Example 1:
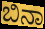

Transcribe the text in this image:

ಬಿನಾ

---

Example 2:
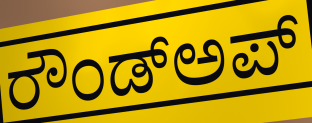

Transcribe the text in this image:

ರೌಂಡ್ಅಪ್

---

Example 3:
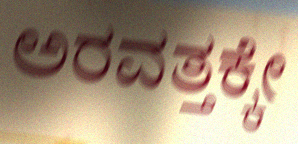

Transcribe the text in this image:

ಅರವತ್ತಕ್ಕೇ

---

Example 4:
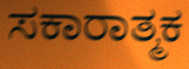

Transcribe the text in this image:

ಸಕಾರಾತ್ಮಕ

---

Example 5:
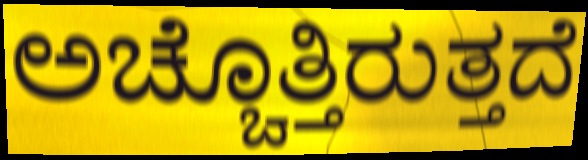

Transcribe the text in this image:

ಅಚ್ಚೊತ್ತಿರುತ್ತದೆ